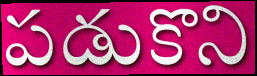
పడుకొని